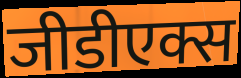
जीडीएक्स